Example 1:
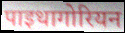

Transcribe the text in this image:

पाइथागोरियन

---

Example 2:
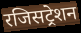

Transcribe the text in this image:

रजिसट्रेशन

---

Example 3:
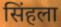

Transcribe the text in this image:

सिंहला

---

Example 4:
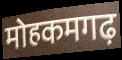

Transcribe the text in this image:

मोहकमगढ़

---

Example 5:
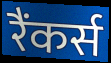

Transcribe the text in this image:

रैंकर्स